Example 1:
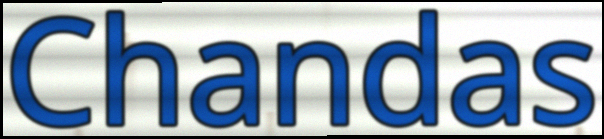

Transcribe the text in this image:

Chandas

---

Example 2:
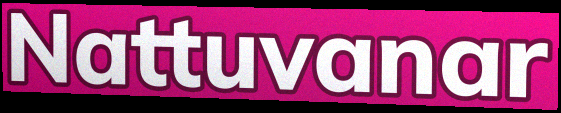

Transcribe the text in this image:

Nattuvanar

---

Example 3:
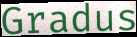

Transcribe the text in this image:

Gradus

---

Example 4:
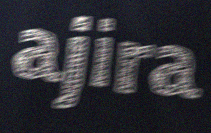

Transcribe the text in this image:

ajira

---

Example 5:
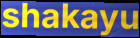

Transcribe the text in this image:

shakayu